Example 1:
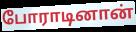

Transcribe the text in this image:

போராடினான்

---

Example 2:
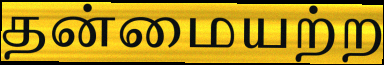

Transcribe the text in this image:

தன்மையற்ற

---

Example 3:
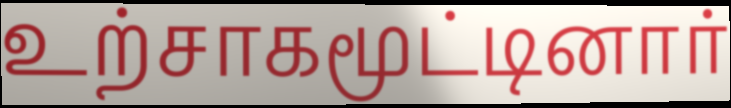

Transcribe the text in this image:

உற்சாகமூட்டினார்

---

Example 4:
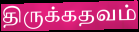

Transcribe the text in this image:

திருக்கதவம்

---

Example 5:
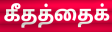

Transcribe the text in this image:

கீதத்தைக்